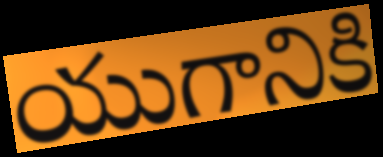
యుగానికి